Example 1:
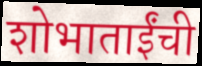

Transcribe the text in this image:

शोभाताईंची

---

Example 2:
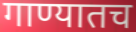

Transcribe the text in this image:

गाण्यातच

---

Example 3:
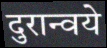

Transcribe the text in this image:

दुरान्वये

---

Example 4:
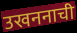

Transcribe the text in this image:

उखननाची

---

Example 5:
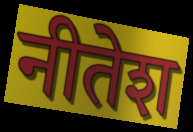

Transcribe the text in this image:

नीतेश